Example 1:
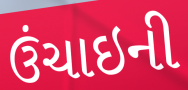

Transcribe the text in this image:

ઉંચાઇની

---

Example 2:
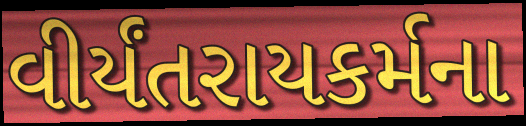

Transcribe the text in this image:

વીર્યંતરાયકર્મના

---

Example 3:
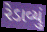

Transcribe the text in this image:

રેડાવ્યું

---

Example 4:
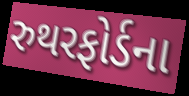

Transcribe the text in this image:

રુથરફોર્ડના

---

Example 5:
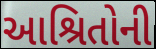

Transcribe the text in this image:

આશ્રિતોની